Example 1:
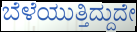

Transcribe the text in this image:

ಬೆಳೆಯುತ್ತಿದ್ದುದೇ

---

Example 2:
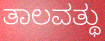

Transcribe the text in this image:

ತಾಲವತ್ಥು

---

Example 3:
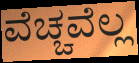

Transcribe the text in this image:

ವೆಚ್ಚವೆಲ್ಲ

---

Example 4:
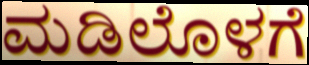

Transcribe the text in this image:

ಮಡಿಲೊಳಗೆ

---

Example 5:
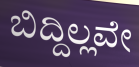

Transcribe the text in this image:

ಬಿದ್ದಿಲ್ಲವೇ